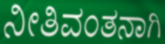
ನೀತಿವಂತನಾಗಿ